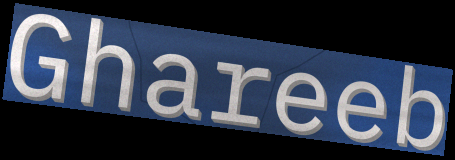
Ghareeb